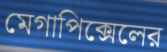
মেগাপিক্সেলের